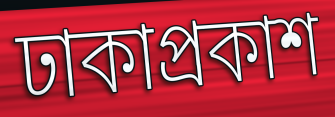
ঢাকাপ্রকাশ